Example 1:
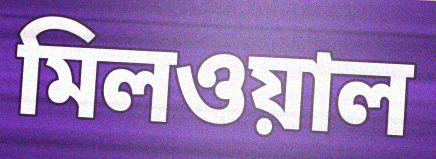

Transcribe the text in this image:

মিলওয়াল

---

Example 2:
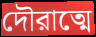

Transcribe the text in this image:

দৌরাত্মে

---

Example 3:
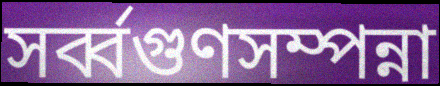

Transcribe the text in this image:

সর্ব্বগুণসম্পন্না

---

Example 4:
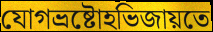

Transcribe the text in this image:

যোগভ্রষ্টোহভিজায়তে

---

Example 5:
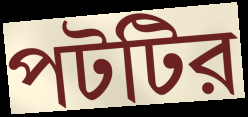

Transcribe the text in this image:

পটটির